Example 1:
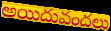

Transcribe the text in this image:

అయిదువందలు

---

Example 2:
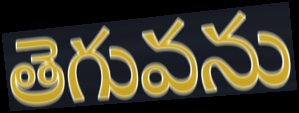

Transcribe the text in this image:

తెగువను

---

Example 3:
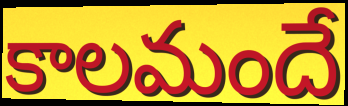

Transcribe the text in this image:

కాలమందే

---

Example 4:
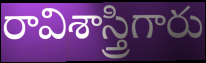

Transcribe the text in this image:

రావిశాస్త్రిగారు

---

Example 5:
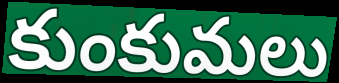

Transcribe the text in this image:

కుంకుమలు